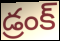
డ్రంక్